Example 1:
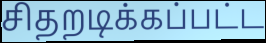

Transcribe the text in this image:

சிதறடிக்கப்பட்ட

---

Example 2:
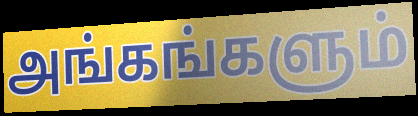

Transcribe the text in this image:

அங்கங்களும்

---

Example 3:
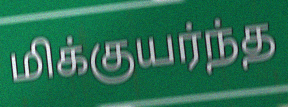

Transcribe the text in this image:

மிக்குயர்ந்த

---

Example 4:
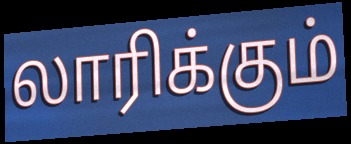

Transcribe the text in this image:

லாரிக்கும்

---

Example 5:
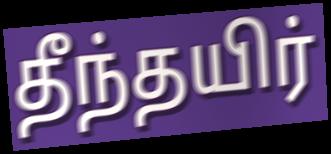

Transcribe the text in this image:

தீந்தயிர்